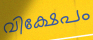
വിക്ഷേപം